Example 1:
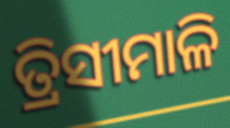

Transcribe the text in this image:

ତ୍ରିସୀମାଳି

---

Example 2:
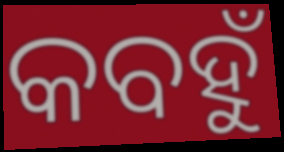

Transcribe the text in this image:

କବହୁଁ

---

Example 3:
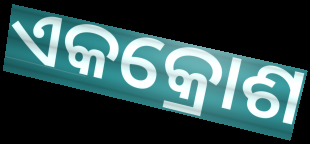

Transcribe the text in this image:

ଏକକ୍ରୋଶ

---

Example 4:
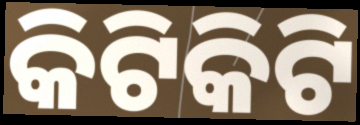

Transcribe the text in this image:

କିଟିକିଟି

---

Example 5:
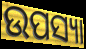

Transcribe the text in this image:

ଉପସ୍ୟା